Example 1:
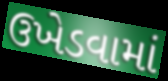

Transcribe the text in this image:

ઉખેડવામાં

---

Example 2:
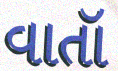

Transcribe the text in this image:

વાતૉ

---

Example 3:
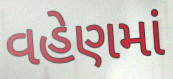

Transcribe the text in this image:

વહેણમાં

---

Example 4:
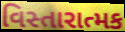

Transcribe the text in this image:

વિસ્તારાત્મક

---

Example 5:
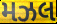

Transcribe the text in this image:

મઝલ